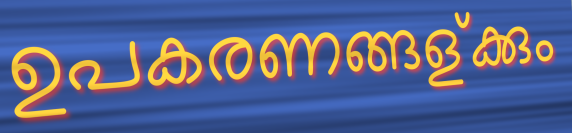
ഉപകരണങ്ങള്ക്കും